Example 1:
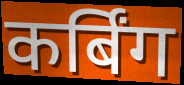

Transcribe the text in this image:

कर्बिंग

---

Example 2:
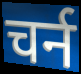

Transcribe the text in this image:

चर्न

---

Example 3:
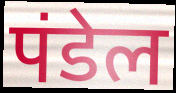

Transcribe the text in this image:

पंडेल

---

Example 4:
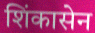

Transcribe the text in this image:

शिंकासेन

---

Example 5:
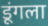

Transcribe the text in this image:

डूंगला